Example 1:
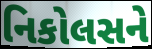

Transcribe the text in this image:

નિકોલસને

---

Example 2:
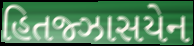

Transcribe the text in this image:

હિતજ્ઝાસયેન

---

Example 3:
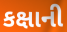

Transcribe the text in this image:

કક્ષાની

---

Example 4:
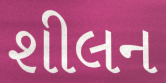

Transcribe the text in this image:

શીલન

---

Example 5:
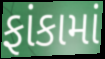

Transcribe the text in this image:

ફાંકામાં